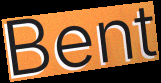
Bent